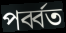
পৰ্ব্বত